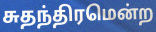
சுதந்திரமென்ற